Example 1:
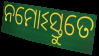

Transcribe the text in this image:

ନମୋଽସ୍ତୁତେ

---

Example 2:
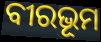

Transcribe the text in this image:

ବୀରଭୂମ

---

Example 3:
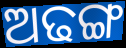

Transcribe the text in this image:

ଅଢଙ୍ଗ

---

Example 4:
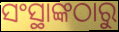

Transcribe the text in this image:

ସଂସ୍ଥାଙ୍କଠାରୁ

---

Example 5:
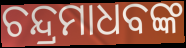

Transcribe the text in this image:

ଚନ୍ଦ୍ରମାଧବଙ୍କ